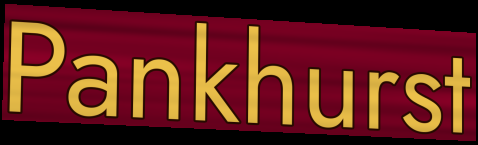
Pankhurst